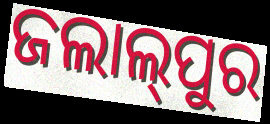
ଜଲାଲ୍‍ପୁର